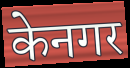
केनगर